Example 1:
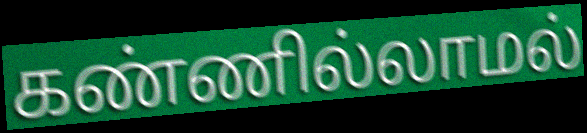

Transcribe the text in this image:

கண்ணில்லாமல்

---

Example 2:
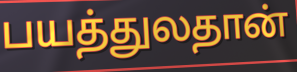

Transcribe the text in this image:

பயத்துலதான்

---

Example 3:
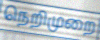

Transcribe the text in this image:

நெறிமுறை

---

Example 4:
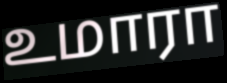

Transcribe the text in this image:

உமாரா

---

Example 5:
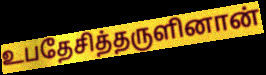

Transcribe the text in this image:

உபதேசித்தருளினான்